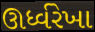
ઊર્ધ્વરેખા